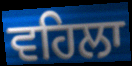
ਵਹਿਲਾ